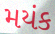
મયંક